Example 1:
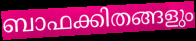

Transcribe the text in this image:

ബാഫക്കിതങ്ങളും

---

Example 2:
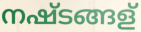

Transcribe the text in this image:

നഷ്ടങ്ങള്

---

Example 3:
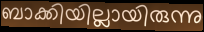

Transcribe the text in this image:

ബാക്കിയില്ലായിരുന്നു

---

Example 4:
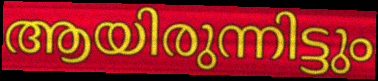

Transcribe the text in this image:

ആയിരുന്നിട്ടും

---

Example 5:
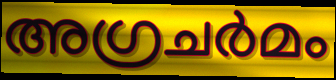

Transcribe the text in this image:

അഗ്രചർമം